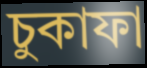
চুকাফা